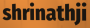
shrinathji